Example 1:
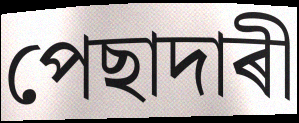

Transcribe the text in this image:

পেছাদাৰী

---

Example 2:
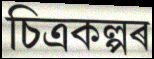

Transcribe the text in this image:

চিত্ৰকল্পৰ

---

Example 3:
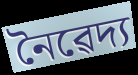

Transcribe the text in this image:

নৈৱেদ্য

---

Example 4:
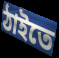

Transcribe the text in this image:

ঠাইতে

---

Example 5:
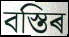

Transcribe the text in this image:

বস্তিৰ